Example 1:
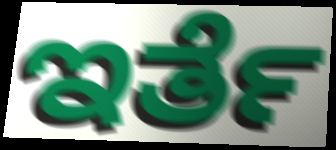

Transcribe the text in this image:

ಇರ್ತೆ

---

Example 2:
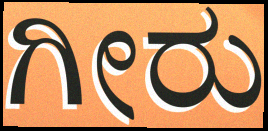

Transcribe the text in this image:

ಗೀರು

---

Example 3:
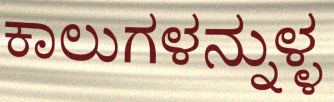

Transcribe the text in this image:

ಕಾಲುಗಳನ್ನುಳ್ಳ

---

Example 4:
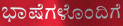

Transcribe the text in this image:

ಭಾಷೆಗಳೊಂದಿಗೆ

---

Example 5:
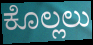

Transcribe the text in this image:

ಕೊಲ್ಲಲು